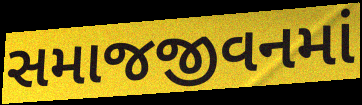
સમાજજીવનમાં